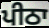
ਪੀਠਾ